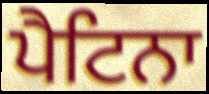
ਪੈਟਿਨਾ